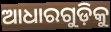
ଆଧାରଗୁଡ଼ିକୁ